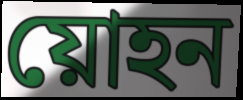
য়োহন